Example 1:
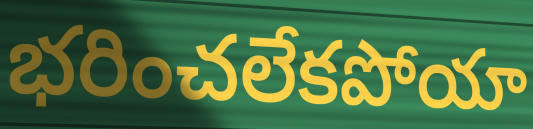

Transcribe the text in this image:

భరించలేకపోయా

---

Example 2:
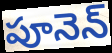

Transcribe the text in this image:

పూనెన్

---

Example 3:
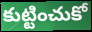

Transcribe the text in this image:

కుట్టించుకో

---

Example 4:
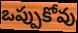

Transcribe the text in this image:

ఒప్పుకోవు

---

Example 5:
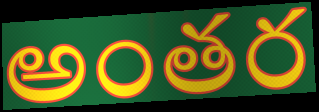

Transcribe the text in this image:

అంతర